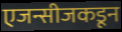
एजन्सीजकडून